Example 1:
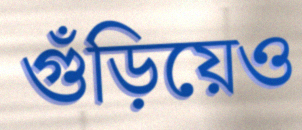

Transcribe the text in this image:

গুঁড়িয়েও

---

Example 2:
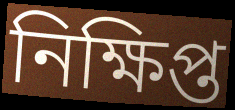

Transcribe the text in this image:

নিক্ষিপ্ত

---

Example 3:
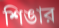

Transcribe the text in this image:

শিঙার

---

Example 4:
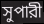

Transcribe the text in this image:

সুপারী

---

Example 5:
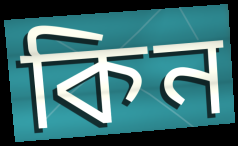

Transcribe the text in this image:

কিন